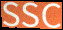
SSC